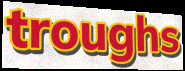
troughs